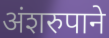
अंशरुपाने